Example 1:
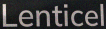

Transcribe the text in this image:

Lenticel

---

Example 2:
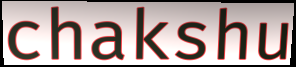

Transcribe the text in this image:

chakshu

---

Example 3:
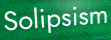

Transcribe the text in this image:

Solipsism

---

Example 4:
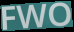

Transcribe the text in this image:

FWO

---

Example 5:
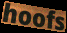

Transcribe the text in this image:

hoofs